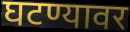
घटण्यावर